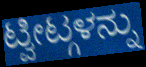
ಟ್ವೀಟ್ಗಳನ್ನು